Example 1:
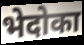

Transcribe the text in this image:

भेदोका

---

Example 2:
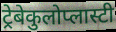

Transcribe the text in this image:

ट्रेबेकुलोप्लास्टी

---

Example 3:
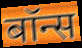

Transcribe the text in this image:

बॉन्स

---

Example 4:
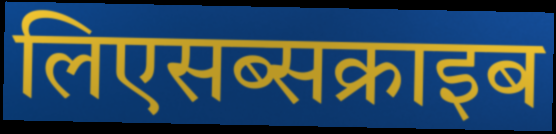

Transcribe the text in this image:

लिएसब्सक्राइब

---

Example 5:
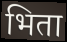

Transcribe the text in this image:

भिता